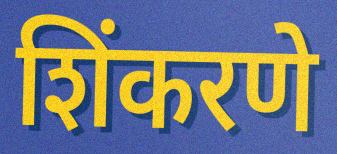
शिंकरणे